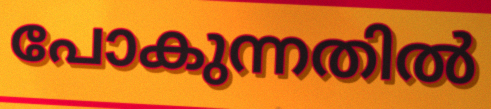
പോകുന്നതിൽ